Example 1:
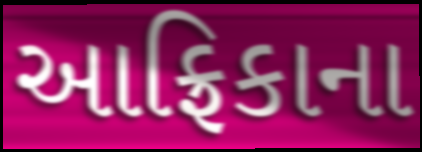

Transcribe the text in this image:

આફ્રિકાના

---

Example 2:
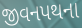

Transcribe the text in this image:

જીવનપથના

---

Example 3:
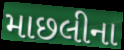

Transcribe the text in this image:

માછલીના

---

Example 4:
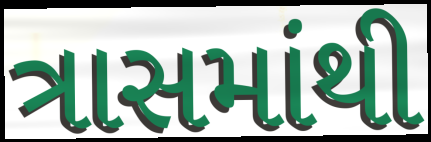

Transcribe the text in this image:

ત્રાસમાંથી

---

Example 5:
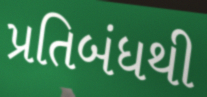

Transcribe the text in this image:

પ્રતિબંધથી